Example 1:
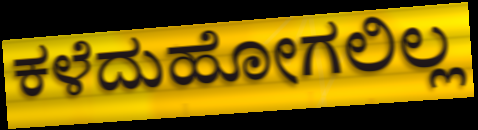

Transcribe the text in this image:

ಕಳೆದುಹೋಗಲಿಲ್ಲ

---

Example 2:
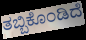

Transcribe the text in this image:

ತಬ್ಬಿಕೊಂಡಿದೆ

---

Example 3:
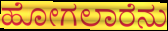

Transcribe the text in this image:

ಹೋಗಲಾರೆನು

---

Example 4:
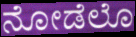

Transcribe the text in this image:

ನೋಡೆಲೊ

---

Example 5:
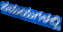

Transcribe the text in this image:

ಸಮಯಗಳಲ್ಲಿ